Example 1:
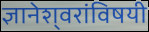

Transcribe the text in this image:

ज्ञानेश्वरांविषयी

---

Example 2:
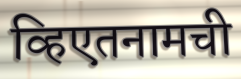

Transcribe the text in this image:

व्हिएतनामची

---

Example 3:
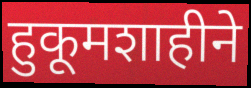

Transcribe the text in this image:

हुकूमशाहीने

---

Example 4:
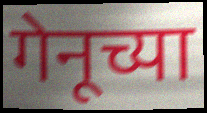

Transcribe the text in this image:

गेनूच्या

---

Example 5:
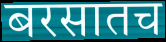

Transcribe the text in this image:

बरसातच